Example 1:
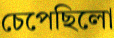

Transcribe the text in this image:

চেপেছিলো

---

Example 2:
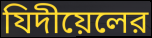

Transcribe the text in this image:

যিদীয়েলের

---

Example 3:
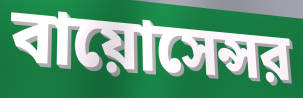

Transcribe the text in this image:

বায়োসেন্সর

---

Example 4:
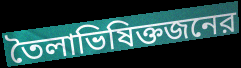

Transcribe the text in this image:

তৈলাভিষিক্তজনের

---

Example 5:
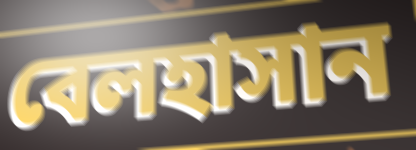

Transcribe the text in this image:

বেলহাসান